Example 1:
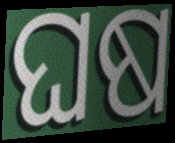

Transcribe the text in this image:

ଘଷ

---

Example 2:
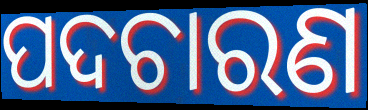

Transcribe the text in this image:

ପଦଚାରଣ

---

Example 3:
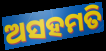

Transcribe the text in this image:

ଅସହମତି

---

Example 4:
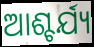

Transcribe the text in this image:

ଆଶ୍ଚର୍ଯ୍ୟ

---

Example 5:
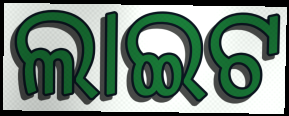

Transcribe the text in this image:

ଲାଇଟ